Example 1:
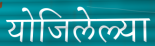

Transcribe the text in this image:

योजिलेल्या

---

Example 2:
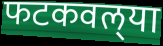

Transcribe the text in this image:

फटकवल्या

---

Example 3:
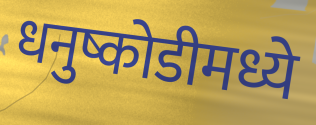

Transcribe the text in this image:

धनुष्कोडीमध्ये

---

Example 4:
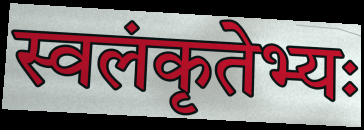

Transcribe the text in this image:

स्वलंकृतेभ्यः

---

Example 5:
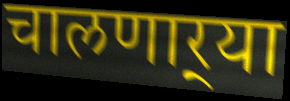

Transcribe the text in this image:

चालणार्या